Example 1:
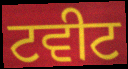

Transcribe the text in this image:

ਟਵੀਟ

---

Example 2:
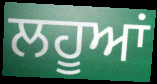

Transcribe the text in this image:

ਲਹੂਆਂ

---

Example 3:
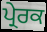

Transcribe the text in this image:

ਪ੍ਰੇਰਕ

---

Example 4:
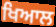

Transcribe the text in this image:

ਖਿਆਲ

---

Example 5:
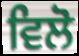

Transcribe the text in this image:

ਵਿਲੋ